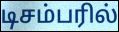
டிசம்பரில்